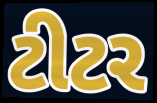
ટીટર